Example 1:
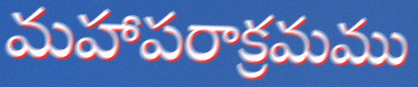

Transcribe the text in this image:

మహాపరాక్రమము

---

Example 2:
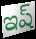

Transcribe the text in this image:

ఇష్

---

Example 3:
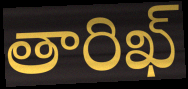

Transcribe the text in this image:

తారిఖ్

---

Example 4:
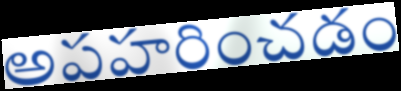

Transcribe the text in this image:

అపహరించడం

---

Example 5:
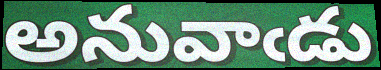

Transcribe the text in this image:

అనువాఁడు